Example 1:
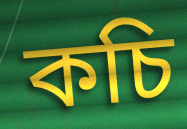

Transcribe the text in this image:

কচি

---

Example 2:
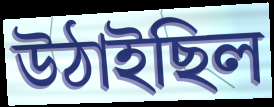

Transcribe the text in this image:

উঠাইছিল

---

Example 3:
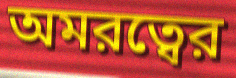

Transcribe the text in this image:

অমরত্বের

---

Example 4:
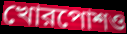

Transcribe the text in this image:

খোরপোশও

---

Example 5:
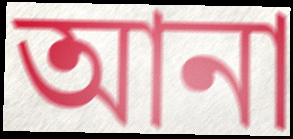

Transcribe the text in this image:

আনা